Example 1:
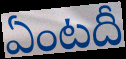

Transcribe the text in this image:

ఏంటదీ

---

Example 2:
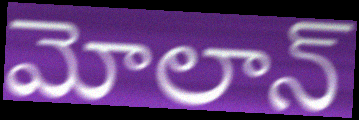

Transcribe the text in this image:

మోలాన్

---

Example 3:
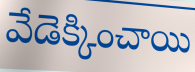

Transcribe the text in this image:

వేడెక్కించాయి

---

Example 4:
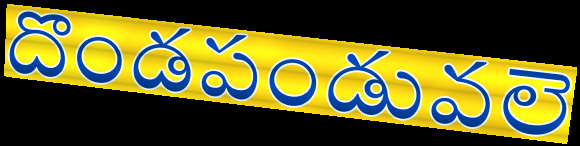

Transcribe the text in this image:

దొండపండువలె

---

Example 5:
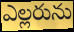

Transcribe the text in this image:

ఎల్లరును